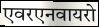
एवरएनवायरो